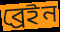
ব্রেইন